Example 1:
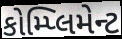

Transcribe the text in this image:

કોમ્પ્લિમેન્ટ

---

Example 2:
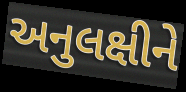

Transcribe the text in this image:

અનુલક્ષીને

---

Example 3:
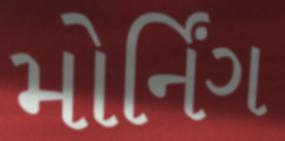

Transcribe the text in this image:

મોર્નિંગ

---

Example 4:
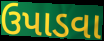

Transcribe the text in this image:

ઉપાડવા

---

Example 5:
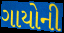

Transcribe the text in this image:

ગાયોની